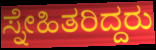
ಸ್ನೇಹಿತರಿದ್ದರು